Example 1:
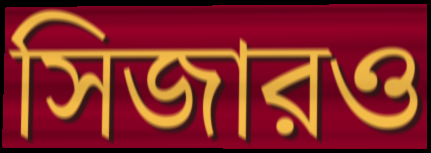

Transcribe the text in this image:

সিজারও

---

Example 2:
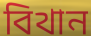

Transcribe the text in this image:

বিথান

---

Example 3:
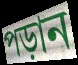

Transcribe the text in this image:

পড়ান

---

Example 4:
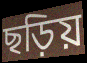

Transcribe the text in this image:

ছড়িয়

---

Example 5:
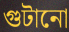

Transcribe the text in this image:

গুটানো